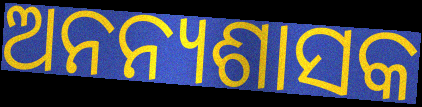
ଅନନ୍ୟଶାସକ